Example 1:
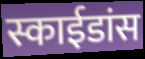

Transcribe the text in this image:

स्काईडांस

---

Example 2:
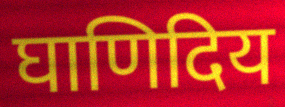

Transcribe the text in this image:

घाणिदिय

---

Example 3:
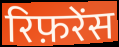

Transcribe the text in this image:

रिफ़रेंस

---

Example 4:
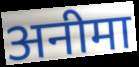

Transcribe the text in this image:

अनीमा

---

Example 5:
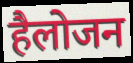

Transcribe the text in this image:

हैलोजन